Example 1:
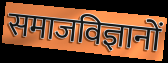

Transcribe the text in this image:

समाजविज्ञानों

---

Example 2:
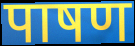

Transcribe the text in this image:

पाषण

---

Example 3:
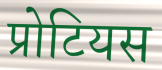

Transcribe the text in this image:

प्रोटियस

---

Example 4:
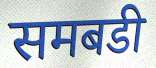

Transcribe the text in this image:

समबडी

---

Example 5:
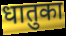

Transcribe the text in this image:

धातुका